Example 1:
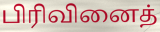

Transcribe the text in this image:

பிரிவினைத்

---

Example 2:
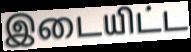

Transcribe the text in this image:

இடையிட்ட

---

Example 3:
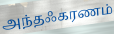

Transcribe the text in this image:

அந்தஃகரணம்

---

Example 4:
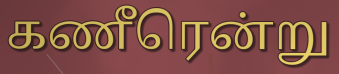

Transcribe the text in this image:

கணீரென்று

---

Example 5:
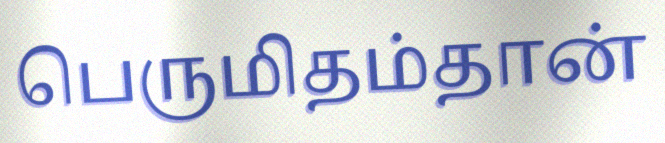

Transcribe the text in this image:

பெருமிதம்தான்